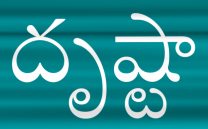
దృష్టా